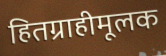
हितग्राहीमूलक